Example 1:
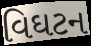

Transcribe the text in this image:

વિઘટન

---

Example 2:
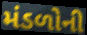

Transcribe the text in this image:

મંડળોની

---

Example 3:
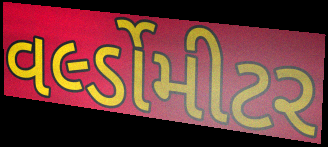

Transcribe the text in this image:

વર્લ્ડોમીટર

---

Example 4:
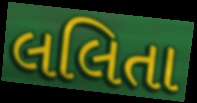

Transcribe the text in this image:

લલિતા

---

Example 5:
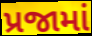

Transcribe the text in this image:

પ્રજામાં